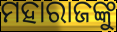
ମହାରାଜଙ୍କୁ